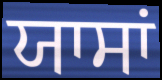
ਯਾਸਾਂ